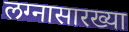
लग्नासारख्या